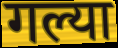
गल्या